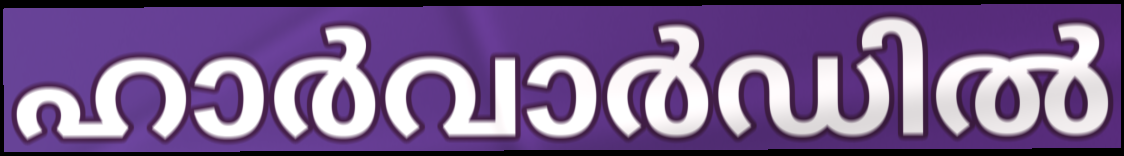
ഹാർവാർഡിൽ